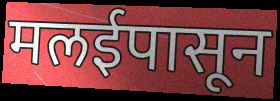
मलईपासून